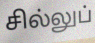
சில்லுப்